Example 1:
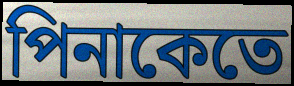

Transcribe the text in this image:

পিনাকেতে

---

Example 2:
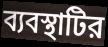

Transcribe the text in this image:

ব্যবস্থাটির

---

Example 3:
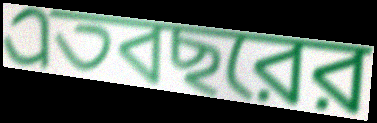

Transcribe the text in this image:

এতবছরের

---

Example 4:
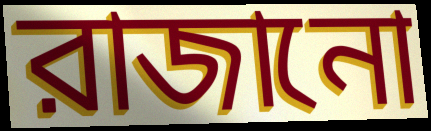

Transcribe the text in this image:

রাজানো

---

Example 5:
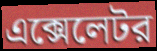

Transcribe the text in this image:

এক্সেলেটর